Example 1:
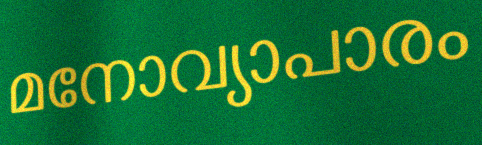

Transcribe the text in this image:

മനോവ്യാപാരം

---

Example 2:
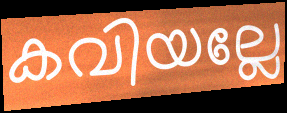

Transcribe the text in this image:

കവിയല്ലേ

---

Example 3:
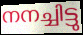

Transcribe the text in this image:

നനച്ചിട്ടു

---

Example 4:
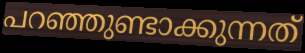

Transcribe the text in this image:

പറഞ്ഞുണ്ടാക്കുന്നത്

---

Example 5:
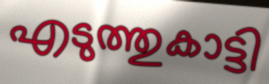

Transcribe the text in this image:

എടുത്തുകാട്ടി